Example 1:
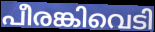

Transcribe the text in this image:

പീരങ്കിവെടി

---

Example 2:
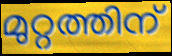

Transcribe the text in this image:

മുറ്റത്തിന്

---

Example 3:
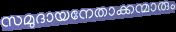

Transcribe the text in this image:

സമുദായനേതാക്കന്മാരും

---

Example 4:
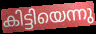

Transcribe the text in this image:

കിട്ടിയെന്നു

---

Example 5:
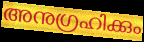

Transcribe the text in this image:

അനുഗ്രഹിക്കും